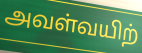
அவள்வயிற்